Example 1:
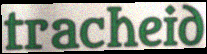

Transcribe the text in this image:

tracheid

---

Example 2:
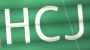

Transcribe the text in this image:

HCJ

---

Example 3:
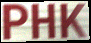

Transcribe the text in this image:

PHK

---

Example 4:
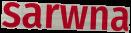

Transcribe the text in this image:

sarwna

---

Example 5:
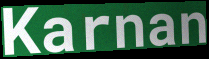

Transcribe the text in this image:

Karnan